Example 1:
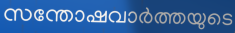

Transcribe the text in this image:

സന്തോഷവാർത്തയുടെ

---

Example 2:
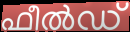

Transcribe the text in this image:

ഫീൽഡ്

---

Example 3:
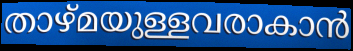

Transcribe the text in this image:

താഴ്മയുള്ളവരാകാൻ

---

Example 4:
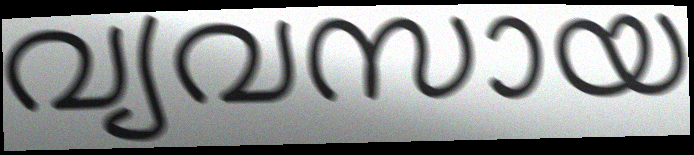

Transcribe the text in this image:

വ്യവസായ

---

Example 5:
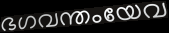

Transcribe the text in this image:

ഭഗവന്തംയേവ